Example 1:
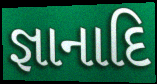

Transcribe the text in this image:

જ્ઞાનાદિ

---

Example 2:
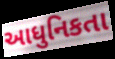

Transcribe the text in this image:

આધુનિકતા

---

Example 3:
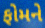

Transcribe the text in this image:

ફોમને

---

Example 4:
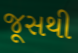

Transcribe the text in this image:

જૂસથી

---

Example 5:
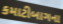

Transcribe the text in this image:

કમાટીબાગના